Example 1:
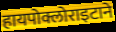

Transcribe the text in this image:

हायपोक्लोराइटाने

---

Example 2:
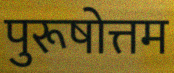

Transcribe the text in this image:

पुरूषोत्तम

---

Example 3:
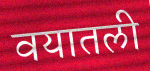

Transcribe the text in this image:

वयातली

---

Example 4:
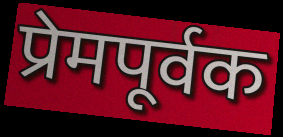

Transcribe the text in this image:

प्रेमपूर्वक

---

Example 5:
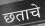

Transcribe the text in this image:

छताचे